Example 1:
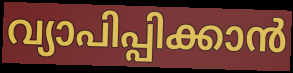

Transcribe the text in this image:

വ്യാപിപ്പിക്കാൻ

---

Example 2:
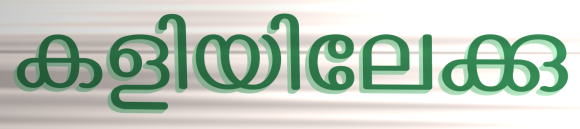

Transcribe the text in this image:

കളിയിലേക്കു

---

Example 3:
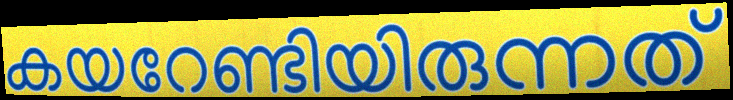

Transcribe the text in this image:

കയറേണ്ടിയിരുന്നത്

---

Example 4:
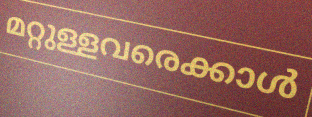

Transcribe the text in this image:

മറ്റുള്ളവരെക്കാൾ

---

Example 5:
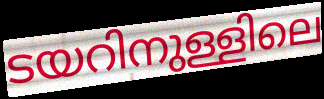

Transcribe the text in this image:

ടയറിനുള്ളിലെ